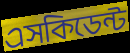
এসকিডেন্ট